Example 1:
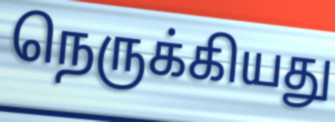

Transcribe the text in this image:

நெருக்கியது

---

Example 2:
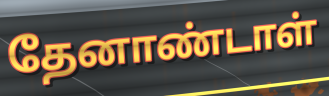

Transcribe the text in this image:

தேனாண்டாள்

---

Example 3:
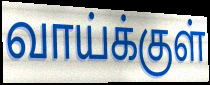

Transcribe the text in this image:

வாய்க்குள்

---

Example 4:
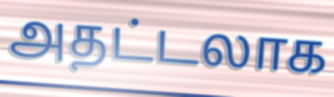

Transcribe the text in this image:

அதட்டலாக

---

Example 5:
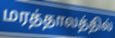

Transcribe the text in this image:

மரத்தாலத்தில்